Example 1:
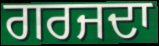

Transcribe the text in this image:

ਗਰਜਦਾ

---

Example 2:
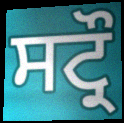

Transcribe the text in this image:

ਸਟ੍ਰੌ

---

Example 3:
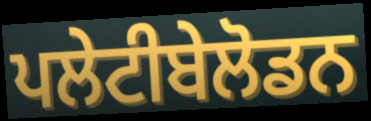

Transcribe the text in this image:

ਪਲੇਟੀਬੇਲੋਡਨ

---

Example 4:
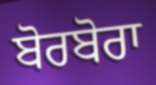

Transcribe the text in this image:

ਬੋਰਬੋਰਾ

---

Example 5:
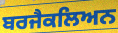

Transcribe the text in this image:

ਬਰਜੈਕਲਿਅਨ